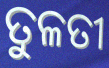
ତୁଳତୀ